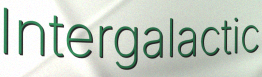
Intergalactic